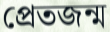
প্রেতজন্ম